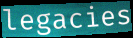
legacies